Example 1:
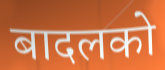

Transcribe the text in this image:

बादलको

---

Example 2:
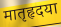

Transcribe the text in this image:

मातृहृदया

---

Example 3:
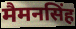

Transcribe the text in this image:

मैमनसिंह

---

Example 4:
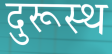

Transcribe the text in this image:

दुरूस्थ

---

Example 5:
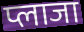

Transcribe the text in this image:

प्‍लाजा